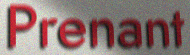
Prenant